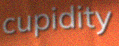
cupidity